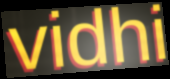
vidhi